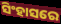
ସିଂହାସରେ